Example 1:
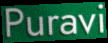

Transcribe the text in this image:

Puravi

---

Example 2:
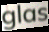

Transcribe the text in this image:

glas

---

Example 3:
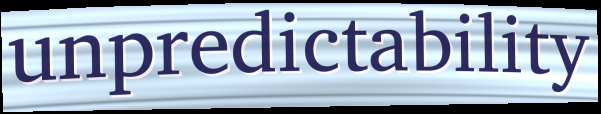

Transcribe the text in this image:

unpredictability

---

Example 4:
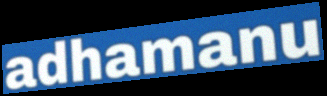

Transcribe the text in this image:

adhamanu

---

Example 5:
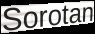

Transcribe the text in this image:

Sorotan